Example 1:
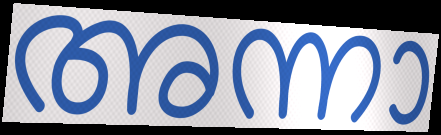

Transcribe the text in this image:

അന്നാ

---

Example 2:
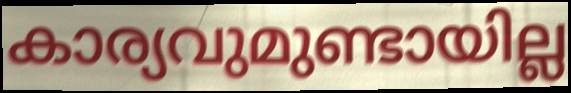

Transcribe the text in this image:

കാര്യവുമുണ്ടായില്ല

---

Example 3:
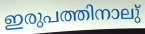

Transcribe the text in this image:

ഇരുപത്തിനാലു്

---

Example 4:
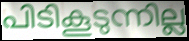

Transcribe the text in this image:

പിടികൂടുന്നില്ല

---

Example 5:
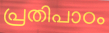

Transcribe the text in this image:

പ്രതിപാഠം